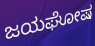
ಜಯಘೋಷ